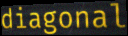
diagonal